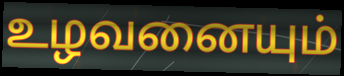
உழவனையும்